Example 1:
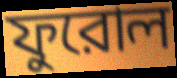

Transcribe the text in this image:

ফুরোল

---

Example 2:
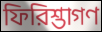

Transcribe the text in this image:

ফিরিশ্তাগণ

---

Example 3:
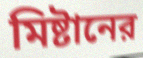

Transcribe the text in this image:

মিষ্টানের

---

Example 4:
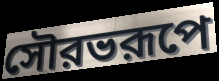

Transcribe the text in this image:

সৌরভরূপে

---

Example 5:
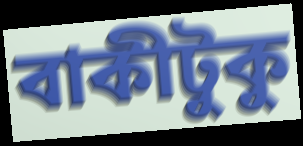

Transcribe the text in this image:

বাকীটুকু